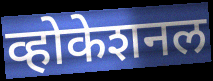
व्होकेशनल